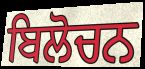
ਬਿਲੋਚਨ